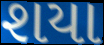
શયા